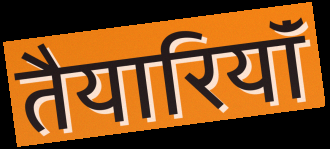
तैयारियॉं